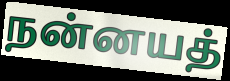
நன்னயத்